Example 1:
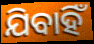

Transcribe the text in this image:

ଯିବାହିଁ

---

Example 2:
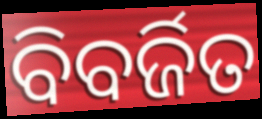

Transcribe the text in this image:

ବିବର୍ଜିତ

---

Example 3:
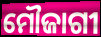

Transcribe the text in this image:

ମୌଜାଗୀ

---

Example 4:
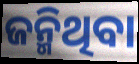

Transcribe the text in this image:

ଜନ୍ମିଥିବା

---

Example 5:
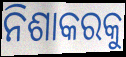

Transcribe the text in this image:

ନିଶାକରକୁ